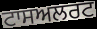
ਟਾਸਅਲਰਟ